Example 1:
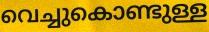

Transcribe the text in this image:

വെച്ചുകൊണ്ടുള്ള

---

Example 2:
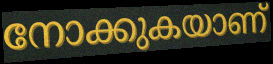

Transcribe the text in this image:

നോക്കുകയാണ്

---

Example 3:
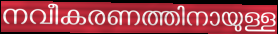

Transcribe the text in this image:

നവീകരണത്തിനായുള്ള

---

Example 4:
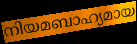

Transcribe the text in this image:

നിയമബാഹ്യമായ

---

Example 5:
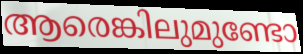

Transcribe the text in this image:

ആരെങ്കിലുമുണ്ടോ